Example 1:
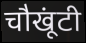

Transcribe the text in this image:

चौखूंटी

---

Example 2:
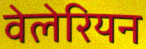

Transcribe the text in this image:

वेलेरियन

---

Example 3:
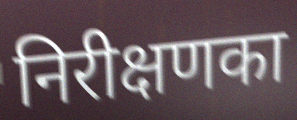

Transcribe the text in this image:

निरीक्षणका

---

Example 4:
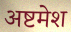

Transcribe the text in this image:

अष्टमेश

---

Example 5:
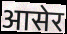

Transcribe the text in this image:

आसेर